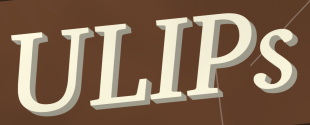
ULIPs